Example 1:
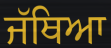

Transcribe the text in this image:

ਜੱਥਿਆ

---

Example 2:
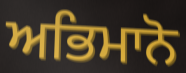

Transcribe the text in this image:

ਅਭਿਮਾਨੋ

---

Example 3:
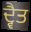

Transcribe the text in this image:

ਦ੍ਵੈਤ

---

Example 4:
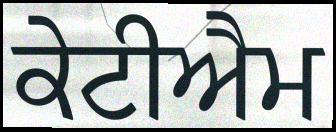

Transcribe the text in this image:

ਕੇਟੀਐਮ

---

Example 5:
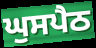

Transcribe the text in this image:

ਘੁਸਪੈਠ